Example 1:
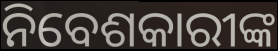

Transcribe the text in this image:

ନିବେଶକାରୀଙ୍କ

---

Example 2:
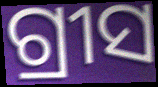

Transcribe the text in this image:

ଗ୍ରୀସ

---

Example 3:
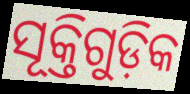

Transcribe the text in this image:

ସୂକ୍ତିଗୁଡ଼ିକ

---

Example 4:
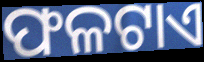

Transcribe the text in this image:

ଫଳଟାଏ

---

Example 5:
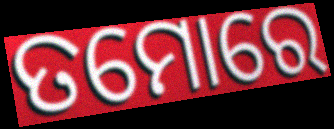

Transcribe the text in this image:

ତମୋରେ